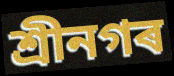
শ্ৰীনগৰ